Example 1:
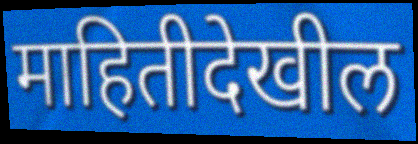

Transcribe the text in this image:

माहितीदेखील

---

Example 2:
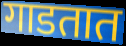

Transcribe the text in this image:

गाडतात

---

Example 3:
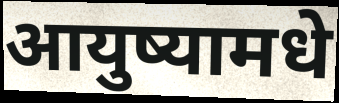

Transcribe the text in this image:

आयुष्यामधे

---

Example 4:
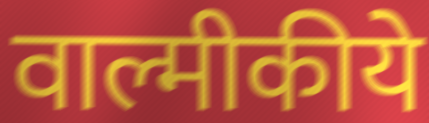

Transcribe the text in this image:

वाल्मीकीये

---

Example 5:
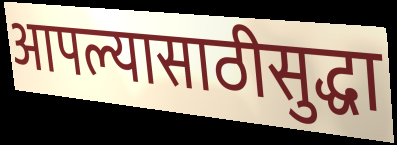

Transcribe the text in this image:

आपल्यासाठीसुद्धा